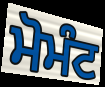
ਮੋਮੰਟ